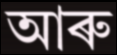
আৰু